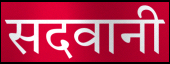
सदवानी